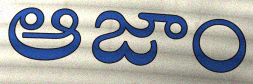
ఆజాం